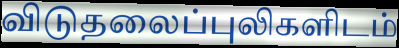
விடுதலைப்புலிகளிடம்